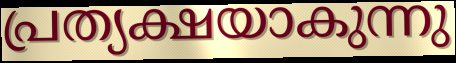
പ്രത്യക്ഷയാകുന്നു